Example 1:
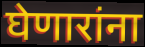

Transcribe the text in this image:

घेणारांना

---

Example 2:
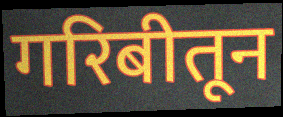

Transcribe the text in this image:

गरिबीतून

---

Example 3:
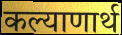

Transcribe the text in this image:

कल्याणार्थ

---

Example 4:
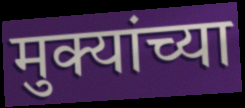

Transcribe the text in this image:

मुक्यांच्या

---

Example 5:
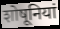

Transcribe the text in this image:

शोषूनियां